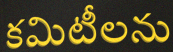
కమిటీలను